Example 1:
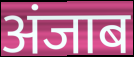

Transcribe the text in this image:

अंजाब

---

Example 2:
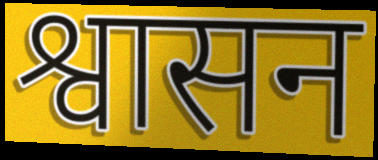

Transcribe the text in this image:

श्वासन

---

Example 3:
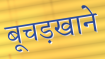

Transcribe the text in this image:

बूचड़खाने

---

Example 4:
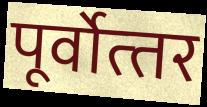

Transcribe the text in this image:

पूर्वोत्‍तर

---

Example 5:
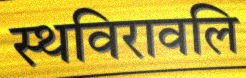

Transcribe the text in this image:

स्थविरावलि